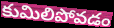
కుమిలిపోవడం